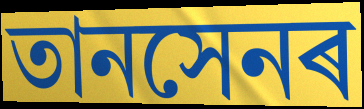
তানসেনৰ